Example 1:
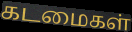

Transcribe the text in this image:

கடமைகள்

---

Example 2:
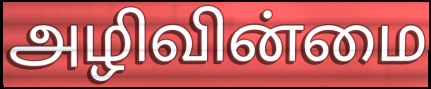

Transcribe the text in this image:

அழிவின்மை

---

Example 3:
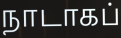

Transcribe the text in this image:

நாடாகப்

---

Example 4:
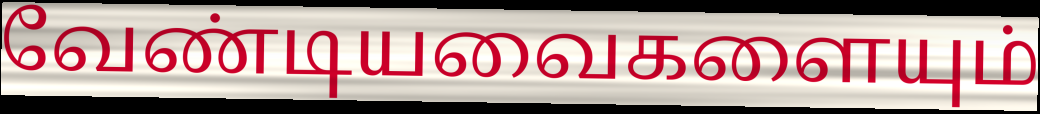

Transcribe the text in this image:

வேண்டியவைகளையும்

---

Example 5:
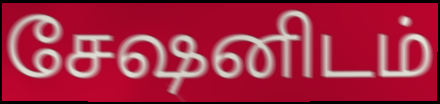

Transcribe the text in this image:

சேஷனிடம்